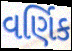
વર્ણિક